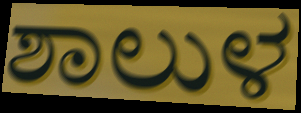
ಶಾಲುಳ